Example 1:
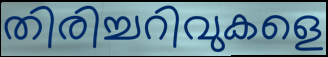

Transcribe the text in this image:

തിരിച്ചറിവുകളെ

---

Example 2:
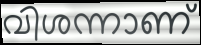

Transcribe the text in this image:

വിശന്നാണ്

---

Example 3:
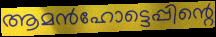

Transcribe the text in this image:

ആമൻഹോട്ടെപ്പിന്റെ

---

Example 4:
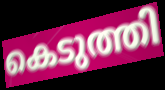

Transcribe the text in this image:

കെടുത്തി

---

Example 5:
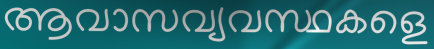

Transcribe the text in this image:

ആവാസവ്യവസ്ഥകളെ